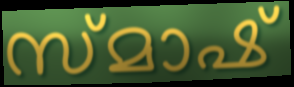
സ്മാഷ്